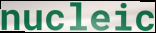
nucleic